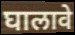
घालावे